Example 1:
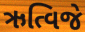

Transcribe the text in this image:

ઋત્વિજે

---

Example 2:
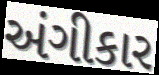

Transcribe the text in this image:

અંગીકાર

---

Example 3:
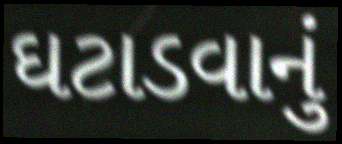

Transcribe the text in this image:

ઘટાડવાનું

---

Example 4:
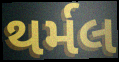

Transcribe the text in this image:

થર્મલ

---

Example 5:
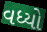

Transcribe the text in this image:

વધ્યો